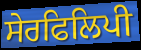
ਸੇਰਫਿਲਿਪੀ